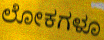
ಲೋಕಗಳೂ